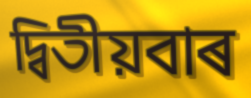
দ্বিতীয়বাৰ